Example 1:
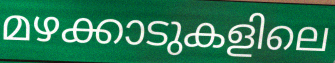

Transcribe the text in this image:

മഴക്കാടുകളിലെ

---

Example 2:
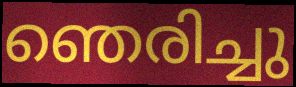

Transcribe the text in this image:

ഞെരിച്ചു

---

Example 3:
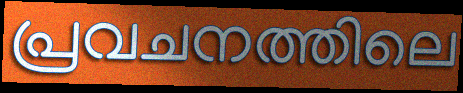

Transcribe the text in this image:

പ്രവചനത്തിലെ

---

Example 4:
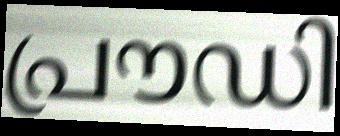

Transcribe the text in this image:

പ്രൗഡി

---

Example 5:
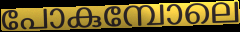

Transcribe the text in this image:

പോകുമ്പോലെ